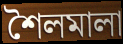
শৈলমালা